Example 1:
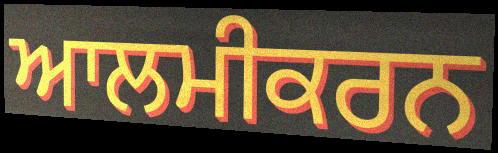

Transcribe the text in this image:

ਆਲਮੀਕਰਨ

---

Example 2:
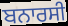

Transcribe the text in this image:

ਬਨਾਰਸੀ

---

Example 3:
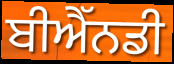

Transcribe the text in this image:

ਬੀਐੱਨਡੀ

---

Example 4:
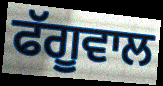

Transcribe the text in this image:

ਫੱਗੂਵਾਲ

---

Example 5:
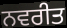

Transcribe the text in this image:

ਨਵਰੀਤ